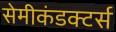
सेमीकंडक्टर्स